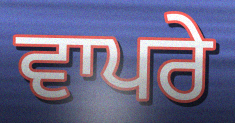
ਵਾਪਰੇ